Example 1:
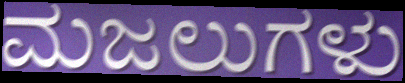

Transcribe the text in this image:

ಮಜಲುಗಳು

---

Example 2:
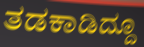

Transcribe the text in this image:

ತಡಕಾಡಿದ್ದೂ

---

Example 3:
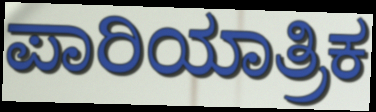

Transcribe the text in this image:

ಪಾರಿಯಾತ್ರಿಕ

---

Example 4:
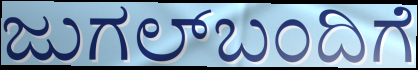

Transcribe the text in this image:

ಜುಗಲ್‌ಬಂದಿಗೆ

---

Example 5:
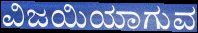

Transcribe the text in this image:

ವಿಜಯಿಯಾಗುವ